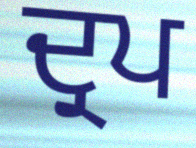
ਦ੍ਰਪ